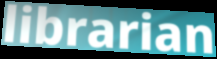
librarian